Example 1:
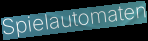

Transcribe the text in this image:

Spielautomaten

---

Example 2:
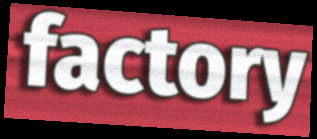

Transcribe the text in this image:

factory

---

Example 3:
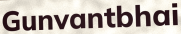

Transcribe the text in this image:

Gunvantbhai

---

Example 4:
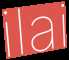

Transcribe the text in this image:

ilai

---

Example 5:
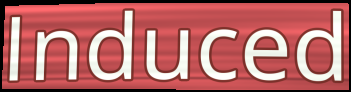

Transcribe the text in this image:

Induced